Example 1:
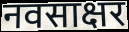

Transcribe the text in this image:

नवसाक्षर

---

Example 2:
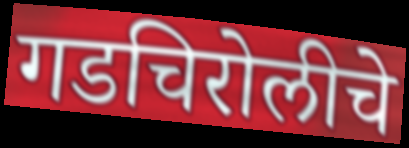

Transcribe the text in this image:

गडचिरोलीचे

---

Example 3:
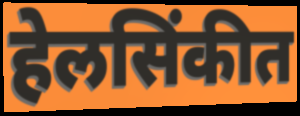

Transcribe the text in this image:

हेलसिंकीत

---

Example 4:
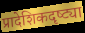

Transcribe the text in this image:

प्रादेशिकदृष्ट्या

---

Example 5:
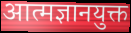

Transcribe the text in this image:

आत्मज्ञानयुक्त